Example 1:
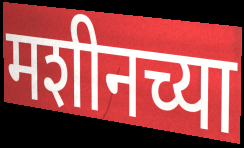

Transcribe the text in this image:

मशीनच्या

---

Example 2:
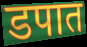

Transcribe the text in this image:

डपात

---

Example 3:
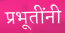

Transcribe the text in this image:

प्रभूतींनी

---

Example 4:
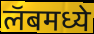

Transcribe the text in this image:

लॅबमध्ये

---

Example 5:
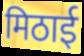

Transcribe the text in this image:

मिठाई